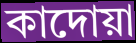
কাদোয়া